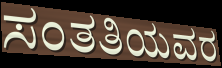
ಸಂತತಿಯವರ